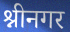
श्नीनगर